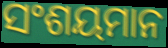
ସଂଶୟମାନ